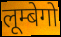
लूम्बेगो